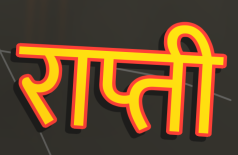
राप्ती